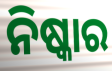
ନିଷ୍କାର